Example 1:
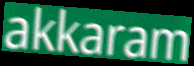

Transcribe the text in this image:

akkaram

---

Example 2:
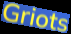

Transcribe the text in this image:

Griots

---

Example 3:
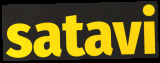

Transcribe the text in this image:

satavi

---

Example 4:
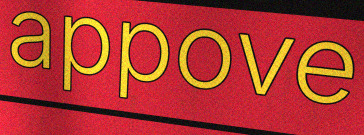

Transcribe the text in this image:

appove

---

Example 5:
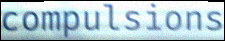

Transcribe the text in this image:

compulsions